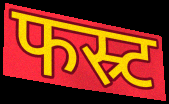
फस्र्ट